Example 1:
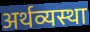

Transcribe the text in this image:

अर्थव्यस्था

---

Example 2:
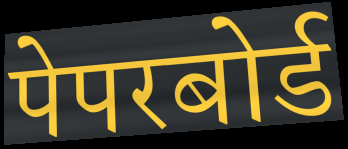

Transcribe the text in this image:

पेपरबोर्ड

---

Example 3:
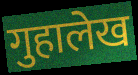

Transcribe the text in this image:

गुहालेख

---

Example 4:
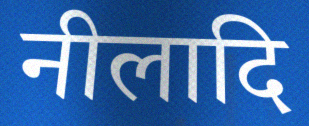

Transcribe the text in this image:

नीलादि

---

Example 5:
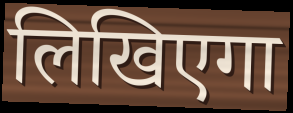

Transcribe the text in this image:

लिखिएगा